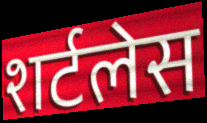
शर्टलेस